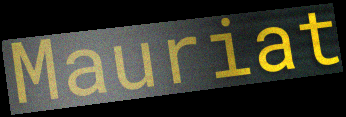
Mauriat